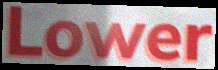
Lower